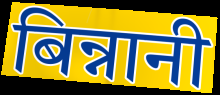
बिन्नानी